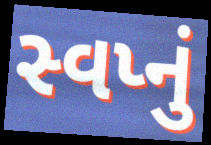
સ્વપ્નું